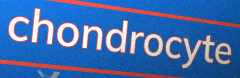
chondrocyte